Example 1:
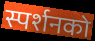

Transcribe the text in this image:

स्पर्शनको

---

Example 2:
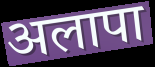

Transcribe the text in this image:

अलापा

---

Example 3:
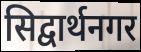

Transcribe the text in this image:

सिद्वार्थनगर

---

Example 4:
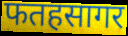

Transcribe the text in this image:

फतहसागर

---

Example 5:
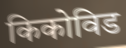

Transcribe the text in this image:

किकोविड